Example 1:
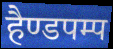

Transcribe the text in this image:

हैण्डपम्प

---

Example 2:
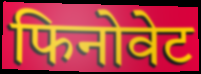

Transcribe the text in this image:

फिनोवेट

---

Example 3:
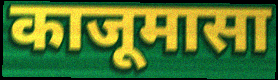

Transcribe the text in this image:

काजूमासा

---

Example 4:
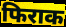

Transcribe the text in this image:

फिराक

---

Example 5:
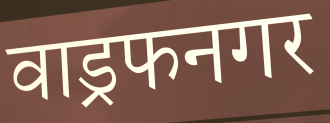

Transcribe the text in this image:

वाड्रफनगर